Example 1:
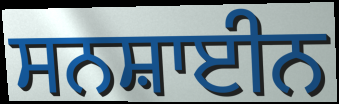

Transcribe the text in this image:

ਸਨਸ਼ਾਈਨ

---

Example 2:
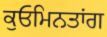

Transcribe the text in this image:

ਕੁਓਮਿਨਤਾਂਗ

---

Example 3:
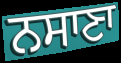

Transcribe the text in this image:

ਨਸਾਣਾ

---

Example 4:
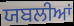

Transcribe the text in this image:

ਯਬਲੀਆਂ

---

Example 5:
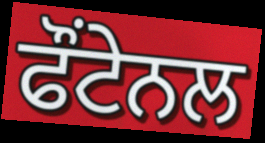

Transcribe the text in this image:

ਫੌਂਟੇਨਲ